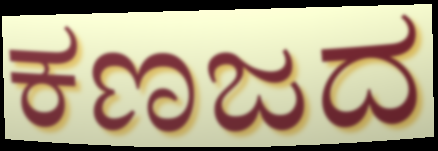
ಕಣಜದ